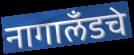
नागालँडचे